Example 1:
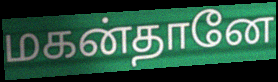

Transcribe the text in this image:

மகன்தானே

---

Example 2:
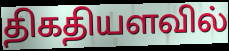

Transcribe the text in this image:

திகதியளவில்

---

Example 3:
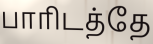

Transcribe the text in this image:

பாரிடத்தே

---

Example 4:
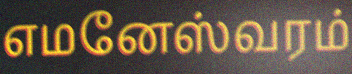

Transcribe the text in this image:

எமனேஸ்வரம்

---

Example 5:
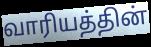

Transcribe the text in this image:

வாரியத்தின்